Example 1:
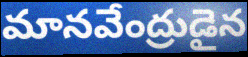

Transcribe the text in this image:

మానవేంద్రుడైన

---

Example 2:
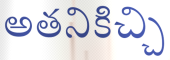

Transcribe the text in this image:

అతనికిచ్చి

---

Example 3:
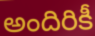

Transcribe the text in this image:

అందిరికీ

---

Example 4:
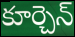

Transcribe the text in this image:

కూర్చెన్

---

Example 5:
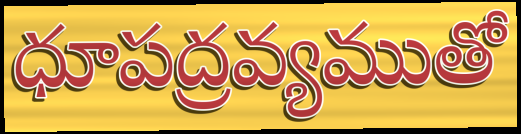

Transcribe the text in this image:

ధూపద్రవ్యముతో